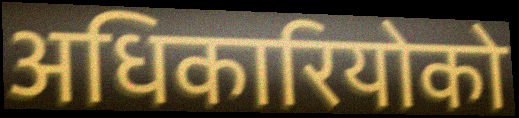
अधिकारियोको